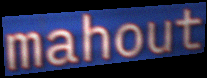
mahout